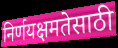
निर्णयक्षमतेसाठी